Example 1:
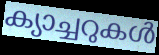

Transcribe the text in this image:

ക്യാച്ചറുകൾ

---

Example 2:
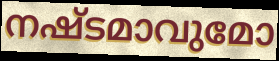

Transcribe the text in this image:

നഷ്ടമാവുമോ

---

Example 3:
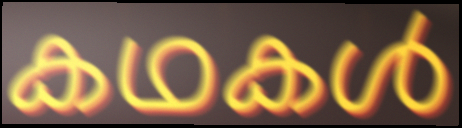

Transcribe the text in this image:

കഥകൾ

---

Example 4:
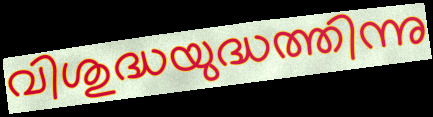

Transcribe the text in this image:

വിശുദ്ധയുദ്ധത്തിന്നു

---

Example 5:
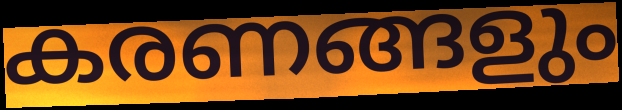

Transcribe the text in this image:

കരണങ്ങളും